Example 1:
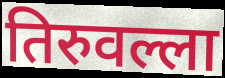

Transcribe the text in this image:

तिरुवल्ला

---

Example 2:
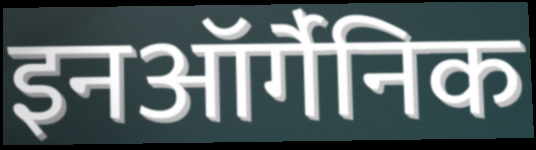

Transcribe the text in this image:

इनऑर्गैनिक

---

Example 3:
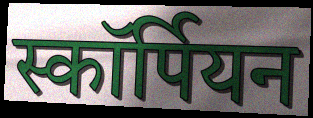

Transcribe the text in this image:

स्कॉर्पियन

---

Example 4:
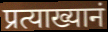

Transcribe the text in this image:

प्रत्याख्यानं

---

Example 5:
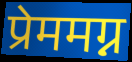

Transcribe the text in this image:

प्रेममग्न